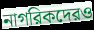
নাগরিকদেরও